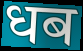
धब